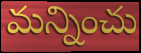
మన్నించు